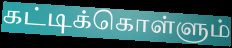
கட்டிக்கொள்ளும்